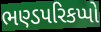
ભણ્ડપરિકપ્પો